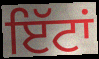
ਇੱਟਾਂ